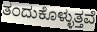
ತಂದುಕೊಳ್ಳುತ್ತವೆ